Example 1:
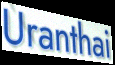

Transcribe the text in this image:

Uranthai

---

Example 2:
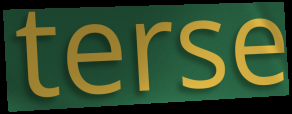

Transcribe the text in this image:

terse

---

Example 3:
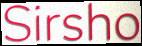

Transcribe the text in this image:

Sirsho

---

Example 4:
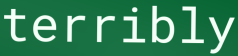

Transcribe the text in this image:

terribly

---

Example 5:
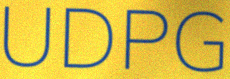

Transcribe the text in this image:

UDPG